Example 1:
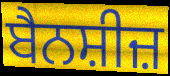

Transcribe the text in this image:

ਬੈਨਸ਼ੀਜ਼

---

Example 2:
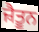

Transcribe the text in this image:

ਜ਼ੈਤੂਨ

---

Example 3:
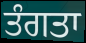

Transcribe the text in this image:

ਤੰਗਤਾ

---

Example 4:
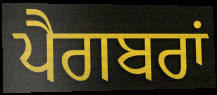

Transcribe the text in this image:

ਪੈਗਬਰਾਂ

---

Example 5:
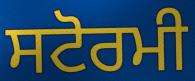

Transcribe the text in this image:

ਸਟੋਰਮੀ